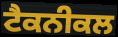
ਟੈਕਨੀਕਲ